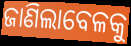
ଜାଣିଲାବେଳକୁ